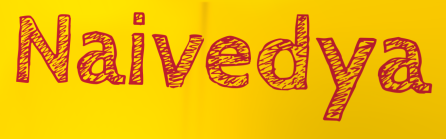
Naivedya